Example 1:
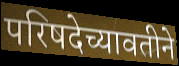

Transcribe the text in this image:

परिषदेच्यावतीने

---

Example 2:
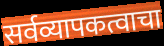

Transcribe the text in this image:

सर्वव्यापकत्वाचा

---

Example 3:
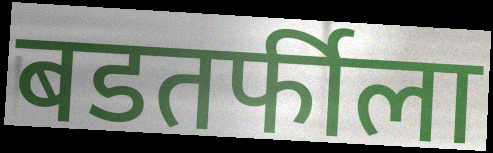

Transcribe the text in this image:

बडतर्फीला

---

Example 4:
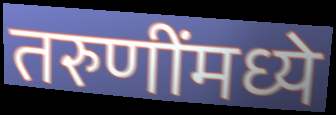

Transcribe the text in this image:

तरुणींमध्ये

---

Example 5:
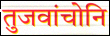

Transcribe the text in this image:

तुजवांचोनि